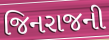
જિનરાજની